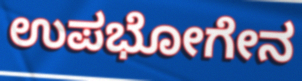
ಉಪಭೋಗೇನ